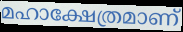
മഹാക്ഷേത്രമാണ്